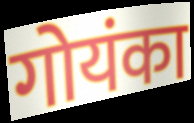
गोयंका